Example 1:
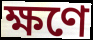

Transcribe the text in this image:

ক্ষণে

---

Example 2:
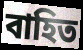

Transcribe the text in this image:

বাহিত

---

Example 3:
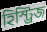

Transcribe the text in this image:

হিস্ট্রিজ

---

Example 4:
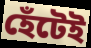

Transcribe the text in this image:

হেঁটেই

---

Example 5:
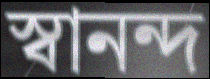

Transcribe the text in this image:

স্বানন্দ